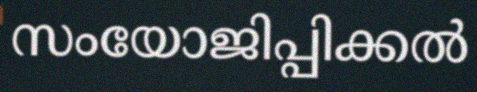
സംയോജിപ്പിക്കൽ